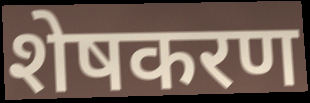
शेषकरण